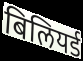
बिलियर्ड